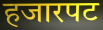
हजारपट